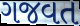
ગજવત